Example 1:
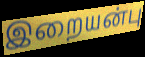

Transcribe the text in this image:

இறையன்பு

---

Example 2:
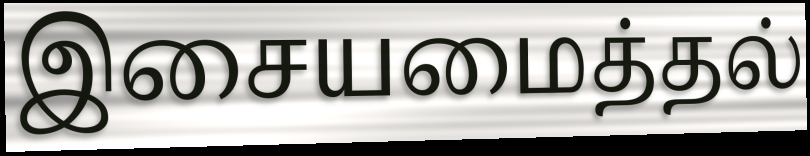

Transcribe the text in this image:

இசையமைத்தல்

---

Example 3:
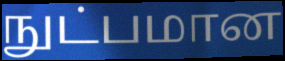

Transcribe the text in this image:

நுட்பமான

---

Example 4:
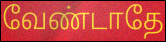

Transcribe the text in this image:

வேண்டாதே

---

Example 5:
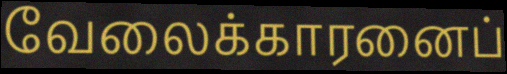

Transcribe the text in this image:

வேலைக்காரனைப்